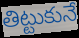
తిట్టుకునే